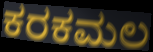
ಕರಕಮಲ